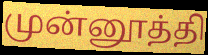
முன்னூத்தி